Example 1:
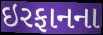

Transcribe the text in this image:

ઇરફાનના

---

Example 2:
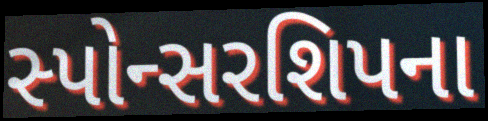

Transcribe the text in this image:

સ્પોન્સરશિપના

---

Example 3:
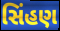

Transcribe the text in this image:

સિંહણ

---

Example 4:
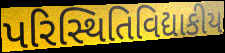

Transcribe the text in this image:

પરિસ્થિતિવિદ્યાકીય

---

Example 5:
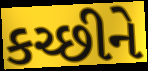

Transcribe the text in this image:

કચ્છીને